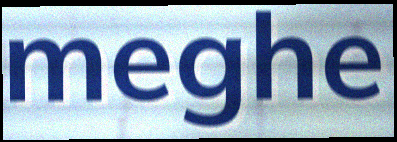
meghe